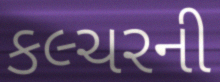
કલ્ચરની